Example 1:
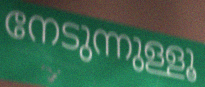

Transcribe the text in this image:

നേടുന്നുള്ളൂ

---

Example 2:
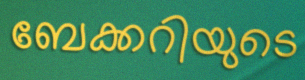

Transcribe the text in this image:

ബേക്കറിയുടെ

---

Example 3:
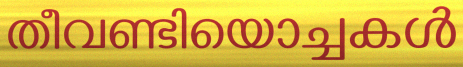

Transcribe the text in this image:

തീവണ്ടിയൊച്ചകൾ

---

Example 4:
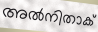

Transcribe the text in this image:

അൽനിതാക്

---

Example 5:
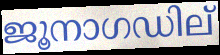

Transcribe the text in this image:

ജൂനാഗഡില്